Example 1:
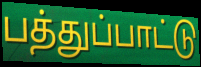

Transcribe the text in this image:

பத்துப்பாட்டு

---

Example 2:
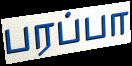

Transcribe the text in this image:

பரப்பா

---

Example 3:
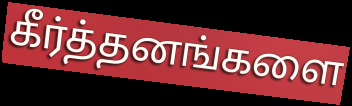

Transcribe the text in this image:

கீர்த்தனங்களை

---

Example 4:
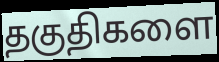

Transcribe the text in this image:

தகுதிகளை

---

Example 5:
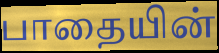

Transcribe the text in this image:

பாதையின்